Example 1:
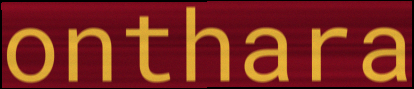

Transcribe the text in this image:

onthara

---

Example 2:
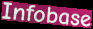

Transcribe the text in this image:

Infobase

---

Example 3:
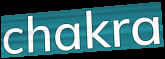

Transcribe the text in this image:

chakra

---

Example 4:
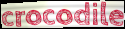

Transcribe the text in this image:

crocodile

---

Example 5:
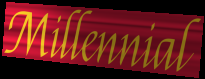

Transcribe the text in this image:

Millennial